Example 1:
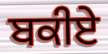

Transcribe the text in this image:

ਬਕੀਏ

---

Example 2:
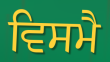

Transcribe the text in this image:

ਵਿਸਮੈ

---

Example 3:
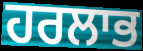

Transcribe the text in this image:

ਹਰਲਾਭ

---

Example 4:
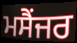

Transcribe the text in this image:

ਮਸੈਂਜਰ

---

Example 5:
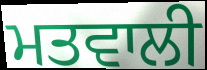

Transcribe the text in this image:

ਮਤਵਾਲੀ